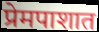
प्रेमपाशात